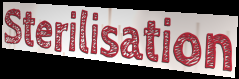
Sterilisation